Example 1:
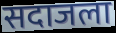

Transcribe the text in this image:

सदाजला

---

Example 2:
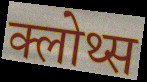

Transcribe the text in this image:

क्लोथ्स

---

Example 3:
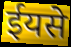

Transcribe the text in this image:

ईयसे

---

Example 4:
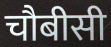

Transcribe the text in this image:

चौबीसी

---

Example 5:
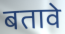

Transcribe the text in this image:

बतावे